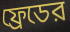
ফ্রেডের